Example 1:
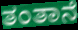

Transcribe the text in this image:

ತಂತಾನೆ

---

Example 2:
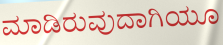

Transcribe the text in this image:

ಮಾಡಿರುವುದಾಗಿಯೂ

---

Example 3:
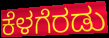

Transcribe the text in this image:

ಕೆಳಗೆರಡು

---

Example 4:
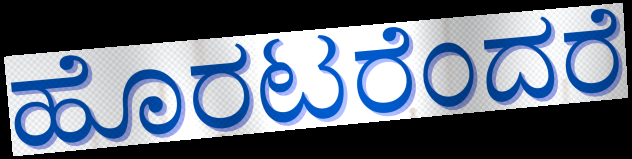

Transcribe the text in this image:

ಹೊರಟರೆಂದರೆ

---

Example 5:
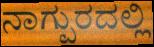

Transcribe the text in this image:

ನಾಗ್ಪುರದಲ್ಲಿ